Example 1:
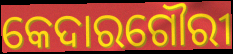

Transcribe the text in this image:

କେଦାରଗୌରୀ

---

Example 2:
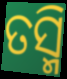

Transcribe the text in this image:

ତସ୍ମି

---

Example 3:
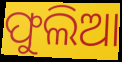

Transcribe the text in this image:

ଫୁଲିଆ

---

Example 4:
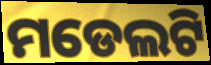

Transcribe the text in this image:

ମଡେଲଟି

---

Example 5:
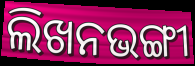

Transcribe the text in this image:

ଲିଖନଭଙ୍ଗୀ